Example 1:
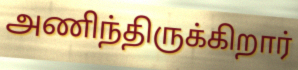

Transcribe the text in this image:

அணிந்திருக்கிறார்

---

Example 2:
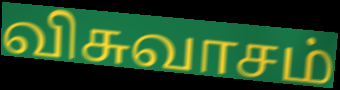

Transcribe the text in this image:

விசுவாசம்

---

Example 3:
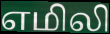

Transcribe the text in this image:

எமிலி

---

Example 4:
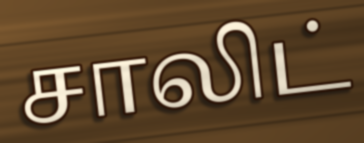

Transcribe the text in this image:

சாலிட்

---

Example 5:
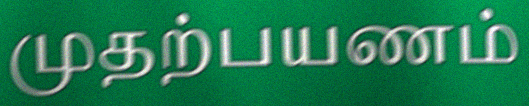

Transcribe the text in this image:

முதற்பயணம்